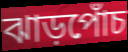
ঝাড়পোঁচ